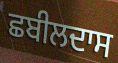
ਛਬੀਲਦਾਸ